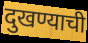
दुखण्याची